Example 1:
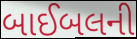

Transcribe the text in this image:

બાઈબલની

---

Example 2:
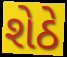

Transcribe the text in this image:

શેઠે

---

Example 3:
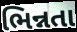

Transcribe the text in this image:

ભિન્નતા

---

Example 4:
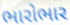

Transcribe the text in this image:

ભારોભાર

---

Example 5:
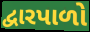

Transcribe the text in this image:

દ્વારપાળો